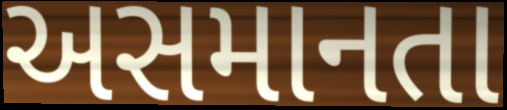
અસમાનતા